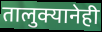
तालुक्यानेही